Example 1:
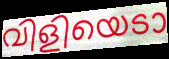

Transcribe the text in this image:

വിളിയെടാ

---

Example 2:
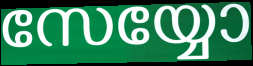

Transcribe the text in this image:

സേയ്യോ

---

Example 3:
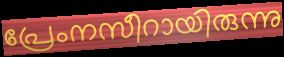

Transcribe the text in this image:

പ്രേംനസീറായിരുന്നു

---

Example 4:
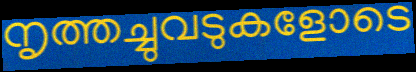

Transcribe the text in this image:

നൃത്തച്ചുവടുകളോടെ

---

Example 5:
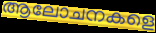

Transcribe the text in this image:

ആലോചനകളെ